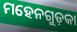
ମହେନଗୁଡ଼କା